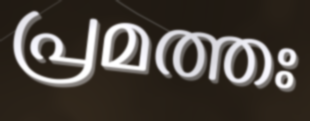
പ്രമത്തഃ